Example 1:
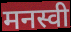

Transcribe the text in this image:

मनस्वी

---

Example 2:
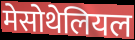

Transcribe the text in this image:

मेसोथेलियल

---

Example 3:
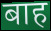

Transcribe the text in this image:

बाह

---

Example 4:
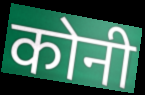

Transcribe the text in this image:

कोनी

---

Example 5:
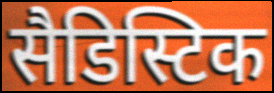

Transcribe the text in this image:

सैडिस्टिक